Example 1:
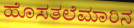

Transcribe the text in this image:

ಹೊಸತಲೆಮಾರಿನ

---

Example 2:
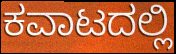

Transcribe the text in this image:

ಕವಾಟದಲ್ಲಿ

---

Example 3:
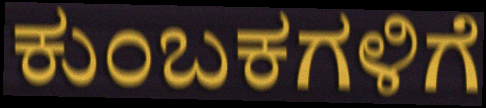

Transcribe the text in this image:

ಕುಂಬಕಗಳಿಗೆ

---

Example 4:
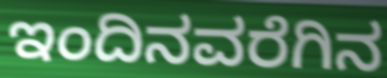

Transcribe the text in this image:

ಇಂದಿನವರೆಗಿನ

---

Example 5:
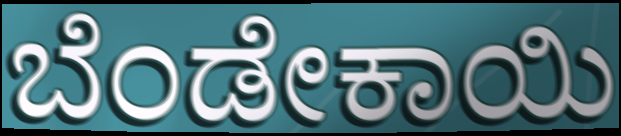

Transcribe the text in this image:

ಬೆಂಡೇಕಾಯಿ